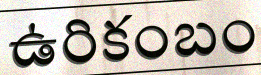
ఉరికంబం